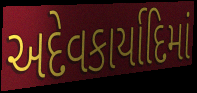
અદેવકાર્યાદિમાં